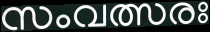
സംവത്സരഃ